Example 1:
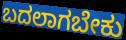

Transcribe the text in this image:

ಬದಲಾಗಬೇಕು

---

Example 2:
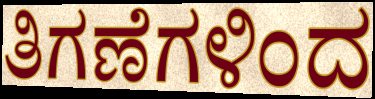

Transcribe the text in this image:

ತಿಗಣೆಗಳಿಂದ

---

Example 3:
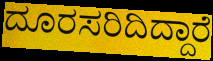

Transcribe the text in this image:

ದೂರಸರಿದಿದ್ದಾರೆ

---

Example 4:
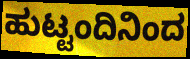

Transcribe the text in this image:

ಹುಟ್ಟಂದಿನಿಂದ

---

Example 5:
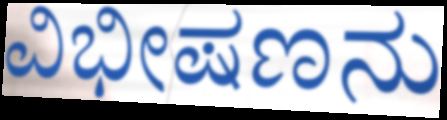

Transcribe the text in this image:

ವಿಭೀಷಣನು